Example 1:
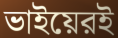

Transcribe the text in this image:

ভাইয়েরই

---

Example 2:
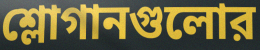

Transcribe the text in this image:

শ্লোগানগুলোর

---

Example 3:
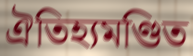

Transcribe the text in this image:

ঐতিহ্যমণ্ডিত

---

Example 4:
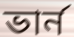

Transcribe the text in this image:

ভার্ন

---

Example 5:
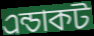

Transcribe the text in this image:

এন্ডাকট